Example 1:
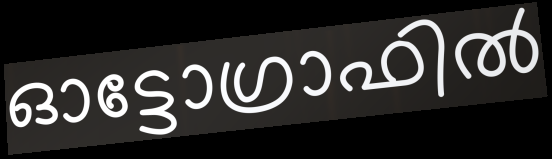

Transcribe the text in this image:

ഓട്ടോഗ്രാഫിൽ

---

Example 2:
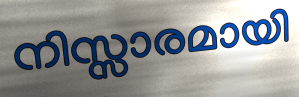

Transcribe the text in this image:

നിസ്സാരമായി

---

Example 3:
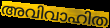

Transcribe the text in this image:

അവിവാഹിത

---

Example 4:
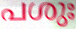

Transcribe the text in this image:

പശുഃ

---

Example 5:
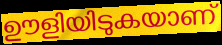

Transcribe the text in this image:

ഊളിയിടുകയാണ്